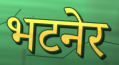
भटनेर